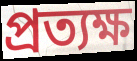
প্রত্যক্ষ